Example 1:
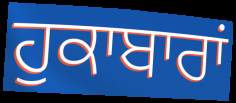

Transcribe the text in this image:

ਹੁਕਾਬਾਰਾਂ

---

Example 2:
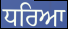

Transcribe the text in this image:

ਧਰਿਆ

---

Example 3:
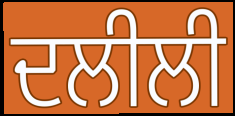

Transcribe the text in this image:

ਦਲੀਲੀ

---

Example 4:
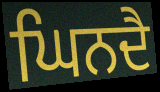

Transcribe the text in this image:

ਘਿਨਦੈ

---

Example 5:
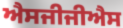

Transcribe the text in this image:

ਐਸਜੀਜੀਐਸ